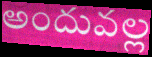
అందువల్ల